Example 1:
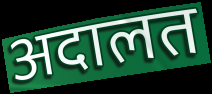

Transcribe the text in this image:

अदालत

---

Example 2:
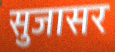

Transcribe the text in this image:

सुजासर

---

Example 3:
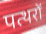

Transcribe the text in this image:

पत्थरों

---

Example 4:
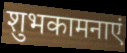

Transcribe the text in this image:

शुभकामनाएं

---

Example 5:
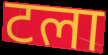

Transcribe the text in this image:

टला